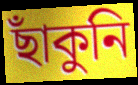
ছাঁকুনি